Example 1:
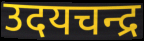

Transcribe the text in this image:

उदयचन्द्र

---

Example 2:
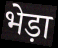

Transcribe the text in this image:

भेड़ा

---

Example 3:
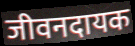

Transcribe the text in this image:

जीवनदायक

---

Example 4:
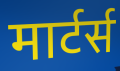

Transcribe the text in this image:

मार्टर्स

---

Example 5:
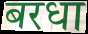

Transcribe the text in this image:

बरधा